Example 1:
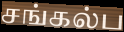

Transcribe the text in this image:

சங்கல்ப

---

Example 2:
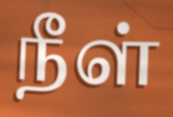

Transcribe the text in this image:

நீள்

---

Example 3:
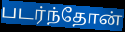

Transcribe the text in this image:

படர்ந்தோன்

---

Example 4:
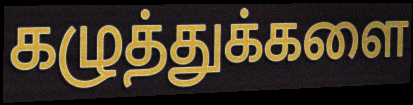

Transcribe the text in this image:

கழுத்துக்களை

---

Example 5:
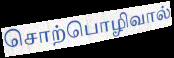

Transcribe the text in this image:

சொற்பொழிவால்